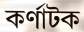
কৰ্ণাটক